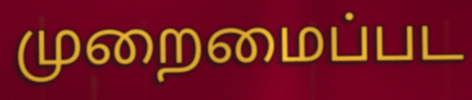
முறைமைப்பட